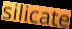
silicate